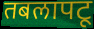
तबलापटू